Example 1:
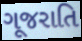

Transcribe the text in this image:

ગૂજરાતિ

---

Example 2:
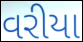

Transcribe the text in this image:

વરીયા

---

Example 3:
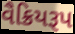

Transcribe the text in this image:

વૈક્રિયરૂપ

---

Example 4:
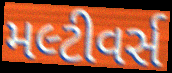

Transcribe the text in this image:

મલ્ટીવર્સ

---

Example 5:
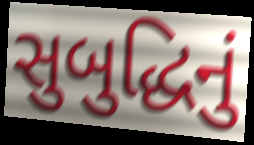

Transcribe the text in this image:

સુબુદ્ધિનું